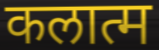
कलात्म